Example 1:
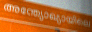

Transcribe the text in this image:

അന്ത്യോഖ്യായിലെ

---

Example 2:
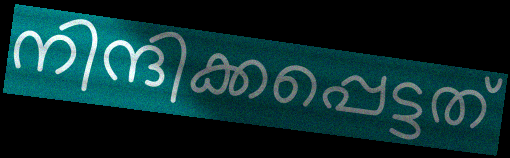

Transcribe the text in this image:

നിന്ദിക്കപ്പെട്ടത്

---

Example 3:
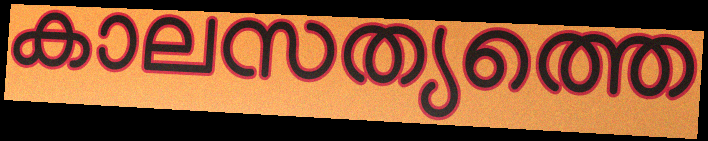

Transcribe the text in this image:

കാലസത്യത്തെ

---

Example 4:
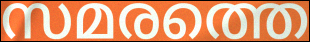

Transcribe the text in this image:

സമരത്തെ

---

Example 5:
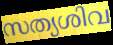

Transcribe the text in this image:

സത്യശിവ